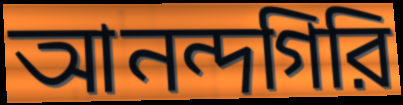
আনন্দগিরি